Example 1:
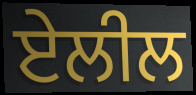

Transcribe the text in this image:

ਏਲੀਲ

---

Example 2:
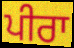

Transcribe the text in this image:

ਪੀਰਾ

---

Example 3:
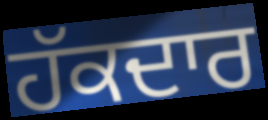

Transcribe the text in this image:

ਹੱਕਦਾਰ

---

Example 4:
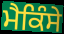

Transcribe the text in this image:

ਮੈਕਿੰਸੇ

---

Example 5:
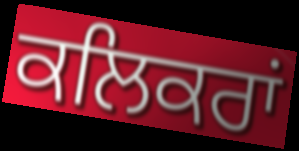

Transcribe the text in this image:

ਕਲਿਕਰਾਂ